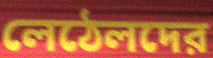
লেঠেলদের